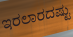
ಇರಲಾರದಷ್ಟು